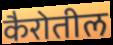
कैरोतील